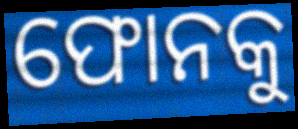
ଫୋନକୁ